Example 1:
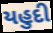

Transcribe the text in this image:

યહુદી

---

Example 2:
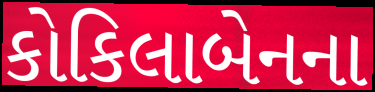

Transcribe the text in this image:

કોકિલાબેનના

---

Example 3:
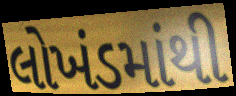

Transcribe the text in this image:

લોખંડમાંથી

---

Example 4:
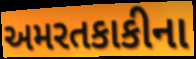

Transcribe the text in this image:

અમરતકાકીના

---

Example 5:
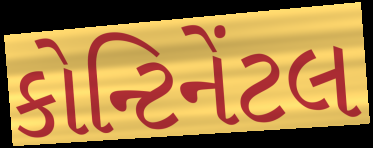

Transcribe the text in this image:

કોન્ટિનેંટલ